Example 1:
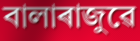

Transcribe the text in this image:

বালাৰাজুৱে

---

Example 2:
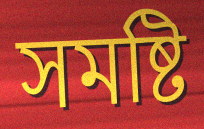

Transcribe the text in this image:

সমষ্টি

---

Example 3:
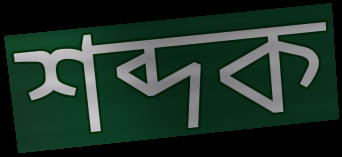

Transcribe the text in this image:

শব্দক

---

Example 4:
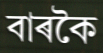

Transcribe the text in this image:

বাৰকৈ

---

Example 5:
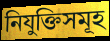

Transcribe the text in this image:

নিযুক্তিসমূহ